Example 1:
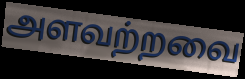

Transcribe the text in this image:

அளவற்றவை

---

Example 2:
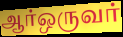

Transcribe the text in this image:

ஆர்ஒருவர்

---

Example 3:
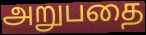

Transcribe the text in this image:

அறுபதை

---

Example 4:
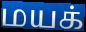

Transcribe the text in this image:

மயக்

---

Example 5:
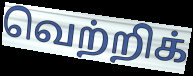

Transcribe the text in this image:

வெற்றிக்